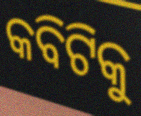
କବିଟିକୁ